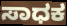
ಸಾಧಕ